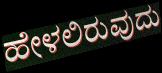
ಹೇಳಲಿರುವುದು